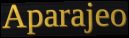
Aparajeo